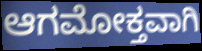
ಆಗಮೋಕ್ತವಾಗಿ